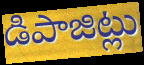
డిపాజిట్లు